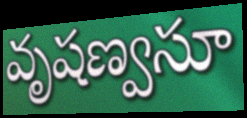
వృషణ్వసూ